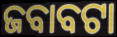
ଜବାବଟା